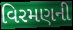
વિરમણની